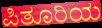
ಪಿತೂರಿಯ